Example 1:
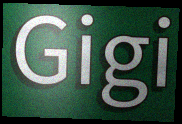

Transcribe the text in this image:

Gigi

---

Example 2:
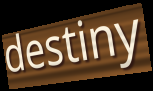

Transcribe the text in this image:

destiny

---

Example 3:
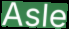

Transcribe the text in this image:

Asle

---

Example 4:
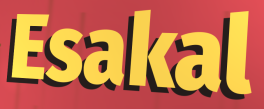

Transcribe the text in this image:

Esakal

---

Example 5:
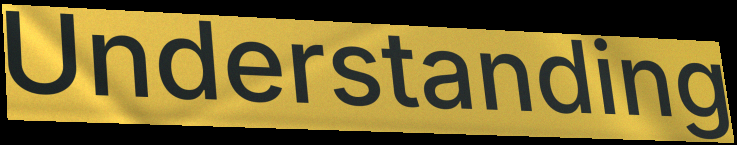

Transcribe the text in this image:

Understanding